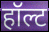
हॉल्ट